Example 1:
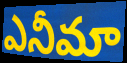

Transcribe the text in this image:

ఎనీమా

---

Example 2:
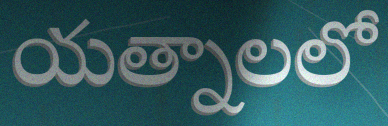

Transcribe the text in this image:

యత్నాలలో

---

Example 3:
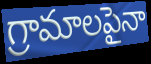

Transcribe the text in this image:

గ్రామాలపైనా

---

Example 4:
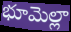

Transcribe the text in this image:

భూమెల్లా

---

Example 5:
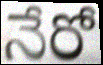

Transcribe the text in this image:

నేరో